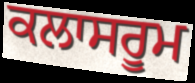
ਕਲਾਸਰੂਮ